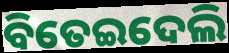
ବିତେଇଦେଲି